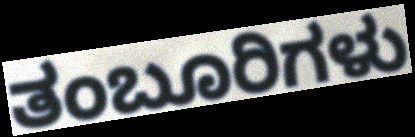
ತಂಬೂರಿಗಳು